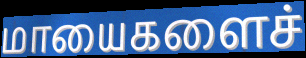
மாயைகளைச்